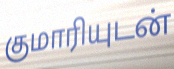
குமாரியுடன்